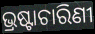
ଭ୍ରଷ୍ଟାଚାରିଣୀ